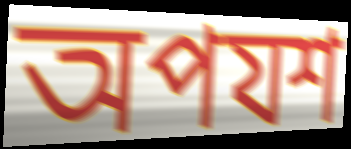
অপযশ